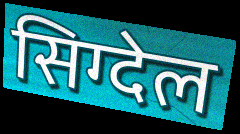
सिग्देल